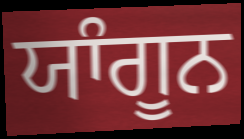
ਯਾੰਗੂਨ